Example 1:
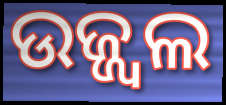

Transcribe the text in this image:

ଉଜ୍ଜ୍ୱଲ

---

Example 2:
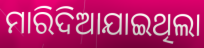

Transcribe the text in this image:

ମାରିଦିଆଯାଇଥିଲା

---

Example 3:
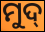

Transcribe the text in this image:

ମୁଦ୍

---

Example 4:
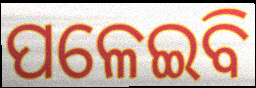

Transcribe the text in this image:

ପଳେଇବି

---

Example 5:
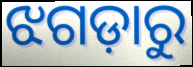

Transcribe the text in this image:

ଝଗଡ଼ାରୁ